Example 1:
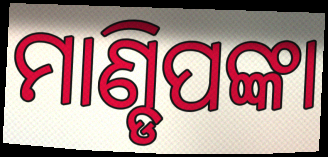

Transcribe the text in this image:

ମାଣ୍ଡିପଙ୍କା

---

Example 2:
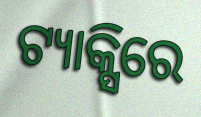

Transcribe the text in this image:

ଟ୍ୟାକ୍ସିରେ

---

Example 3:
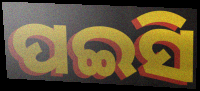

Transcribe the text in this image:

ପଇସି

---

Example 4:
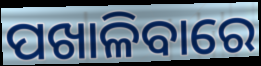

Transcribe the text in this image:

ପଖାଳିବାରେ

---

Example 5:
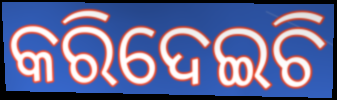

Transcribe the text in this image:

କରିଦେଇଚି